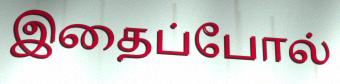
இதைப்போல்